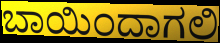
ಬಾಯಿಂದಾಗಲಿ